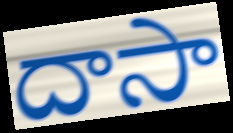
దాసా